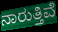
ನಾರುತ್ತಿವೆ